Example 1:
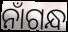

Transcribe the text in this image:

ନାଁଗନ୍ଧ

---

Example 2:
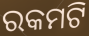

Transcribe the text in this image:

ରକମଟି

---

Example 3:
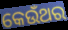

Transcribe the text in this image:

କେଉଁଥର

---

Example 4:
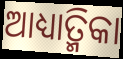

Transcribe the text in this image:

ଆଧ୍ୟାତ୍ମିକା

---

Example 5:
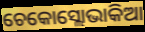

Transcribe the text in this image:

ଚେକୋସ୍ଲୋଭାକିଆ